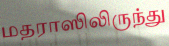
மதராஸிலிருந்து